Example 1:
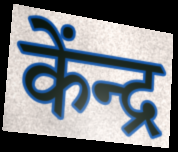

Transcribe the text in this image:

केंन्द्र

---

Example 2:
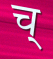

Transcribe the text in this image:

च्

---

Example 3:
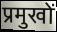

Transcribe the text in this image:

प्रमुखों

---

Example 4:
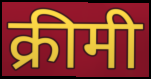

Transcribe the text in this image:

क्रीमी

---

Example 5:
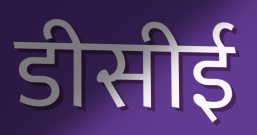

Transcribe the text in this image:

डीसीई